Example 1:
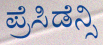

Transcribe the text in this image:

ಪ್ರೆಸಿಡೆನ್ಸಿ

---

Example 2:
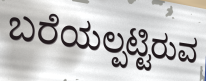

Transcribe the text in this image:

ಬರೆಯಲ್ಪಟ್ಟಿರುವ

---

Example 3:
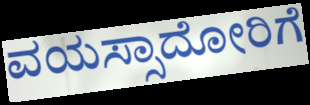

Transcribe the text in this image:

ವಯಸ್ಸಾದೋರಿಗೆ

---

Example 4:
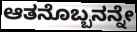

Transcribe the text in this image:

ಆತನೊಬ್ಬನನ್ನೇ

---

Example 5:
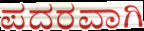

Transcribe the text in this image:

ಪದರವಾಗಿ